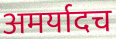
अमर्यादच